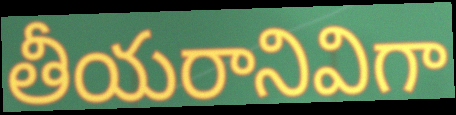
తీయరానివిగా